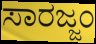
ಸಾರಜ್ಜಂ